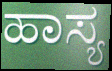
ಹಾಸ್ಯ